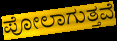
ಪೋಲಾಗುತ್ತವೆ